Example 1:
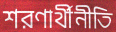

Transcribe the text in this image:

শরণার্থীনীতি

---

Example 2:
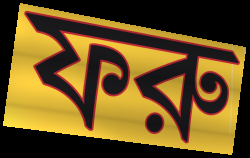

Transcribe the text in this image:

ফরু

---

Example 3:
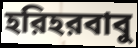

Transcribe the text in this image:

হরিহরবাবু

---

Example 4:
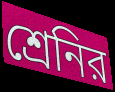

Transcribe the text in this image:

শ্রেনির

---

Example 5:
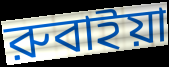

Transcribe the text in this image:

রুবাইয়া